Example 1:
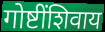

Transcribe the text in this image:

गोष्टींशिवाय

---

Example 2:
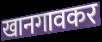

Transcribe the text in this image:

खानगावकर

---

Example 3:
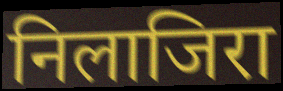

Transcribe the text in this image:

निलाजिरा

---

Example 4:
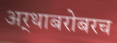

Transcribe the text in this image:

अर्थाबरोबरच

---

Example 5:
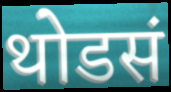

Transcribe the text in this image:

थोडसं